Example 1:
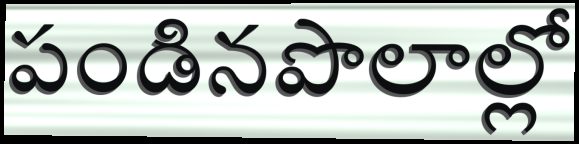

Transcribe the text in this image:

పండినపొలాల్లో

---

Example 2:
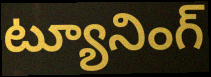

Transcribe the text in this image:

ట్యూనింగ్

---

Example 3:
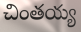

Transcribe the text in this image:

చింతయ్య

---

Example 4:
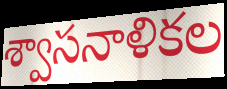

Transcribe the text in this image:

శ్వాసనాళికల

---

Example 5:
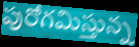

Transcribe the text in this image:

పురోగమిస్తున్న